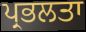
ਪ੍ਰਭਲਤਾ